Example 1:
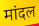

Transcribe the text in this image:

मांदल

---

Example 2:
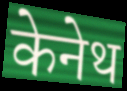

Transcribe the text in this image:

केनेथ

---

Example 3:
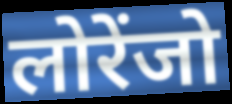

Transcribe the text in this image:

लोरेंजो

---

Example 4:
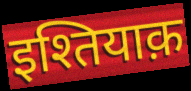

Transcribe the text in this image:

इश्तियाक़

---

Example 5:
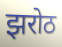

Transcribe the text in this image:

झरोठ